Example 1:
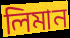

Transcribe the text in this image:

লিমান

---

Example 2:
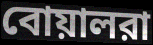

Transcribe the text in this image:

বোয়ালরা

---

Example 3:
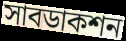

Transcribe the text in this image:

সাবডাকশন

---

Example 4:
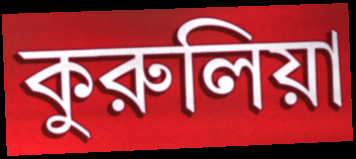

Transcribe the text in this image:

কুরুলিয়া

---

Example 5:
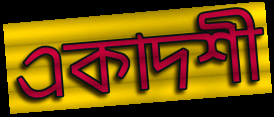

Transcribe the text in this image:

একাদশী